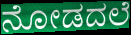
ನೋಡದಲೆ